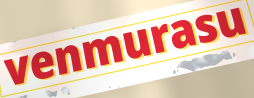
venmurasu